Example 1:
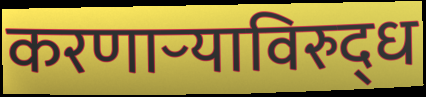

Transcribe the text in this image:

करणाऱ्याविरुद्ध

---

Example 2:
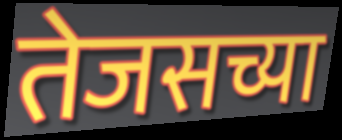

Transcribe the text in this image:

तेजसच्या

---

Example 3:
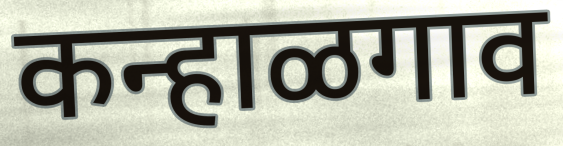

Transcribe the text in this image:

कन्हाळगाव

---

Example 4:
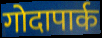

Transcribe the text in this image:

गोदापार्क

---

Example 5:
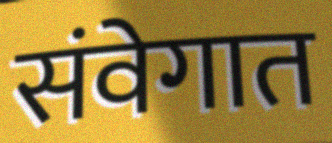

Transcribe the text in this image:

संवेगात